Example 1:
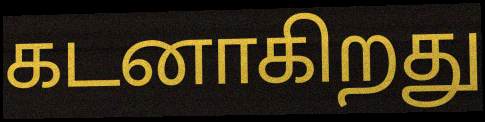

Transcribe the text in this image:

கடனாகிறது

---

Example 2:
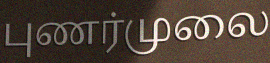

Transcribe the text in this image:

புணர்முலை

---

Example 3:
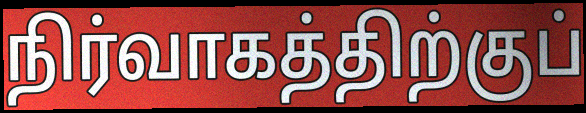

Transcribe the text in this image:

நிர்வாகத்திற்குப்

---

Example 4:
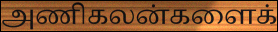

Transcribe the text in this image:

அணிகலன்களைக்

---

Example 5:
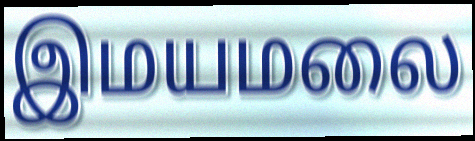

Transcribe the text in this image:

இமயமலை